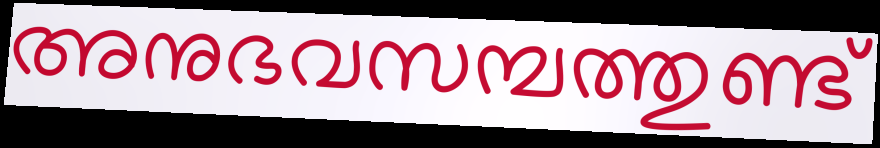
അനുഭവസമ്പത്തുണ്ട്